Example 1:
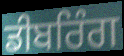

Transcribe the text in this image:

ਡੀਬਰਿੰਗ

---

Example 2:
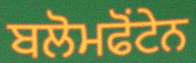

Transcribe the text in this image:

ਬਲੋਮਫੋਂਟੇਨ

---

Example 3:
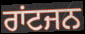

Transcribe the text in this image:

ਰਾਂਟਜਨ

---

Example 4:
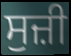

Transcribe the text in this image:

ਸੁਜ਼ੀ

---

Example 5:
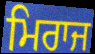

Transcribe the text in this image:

ਮਿਰਾਜ